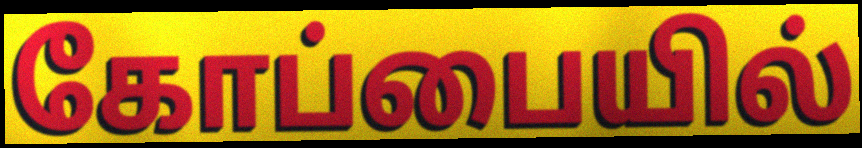
கோப்பையில்